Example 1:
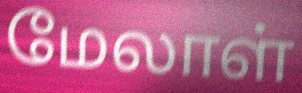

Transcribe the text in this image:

மேலாள்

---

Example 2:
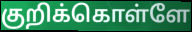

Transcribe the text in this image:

குறிக்கொள்ளே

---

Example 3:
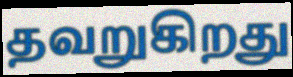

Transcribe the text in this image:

தவறுகிறது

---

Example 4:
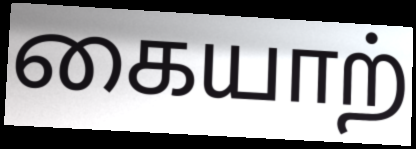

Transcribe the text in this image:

கையாற்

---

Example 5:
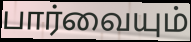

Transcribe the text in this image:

பார்வையும்